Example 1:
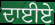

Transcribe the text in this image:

ਦਾਈਏ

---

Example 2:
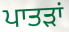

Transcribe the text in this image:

ਪਾਤੜਾਂ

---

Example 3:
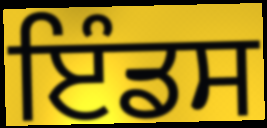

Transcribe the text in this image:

ਇੰਡਸ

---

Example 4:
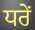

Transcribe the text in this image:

ਧਰੇਂ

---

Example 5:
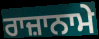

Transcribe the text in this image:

ਰਾਜ਼ਾਨਾਮੇ